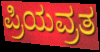
ಪ್ರಿಯವ್ರತ